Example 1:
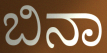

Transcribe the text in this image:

ಬಿನಾ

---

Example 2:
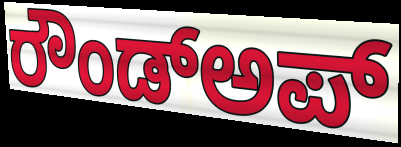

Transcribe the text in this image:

ರೌಂಡ್ಅಪ್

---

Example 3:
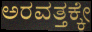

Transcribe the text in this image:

ಅರವತ್ತಕ್ಕೇ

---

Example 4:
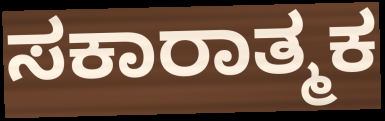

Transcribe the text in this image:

ಸಕಾರಾತ್ಮಕ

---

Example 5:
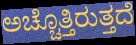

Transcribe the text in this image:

ಅಚ್ಚೊತ್ತಿರುತ್ತದೆ